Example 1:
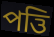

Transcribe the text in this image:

পত্তি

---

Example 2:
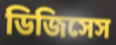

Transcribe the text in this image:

ডিজিসেস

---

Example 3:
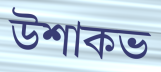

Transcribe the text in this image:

উশাকভ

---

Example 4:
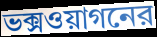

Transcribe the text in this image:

ভক্সওয়াগনের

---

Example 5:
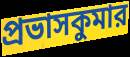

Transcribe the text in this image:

প্রভাসকুমার